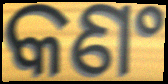
କଣଂ